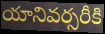
యానివర్సరీకి